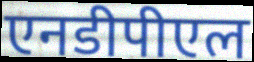
एनडीपीएल